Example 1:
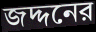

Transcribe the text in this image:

জদ্দনের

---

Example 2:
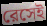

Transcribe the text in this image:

রেসেই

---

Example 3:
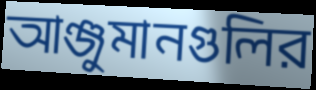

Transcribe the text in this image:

আঞ্জুমানগুলির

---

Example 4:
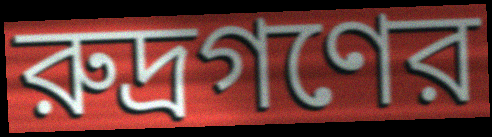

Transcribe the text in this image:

রুদ্রগণের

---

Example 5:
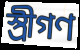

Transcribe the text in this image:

স্ত্রীগণ